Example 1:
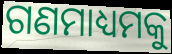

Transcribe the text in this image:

ଗଣମାଧ୍ୟମକୁ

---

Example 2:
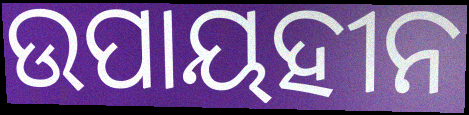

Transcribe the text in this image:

ଉପାୟହୀନ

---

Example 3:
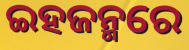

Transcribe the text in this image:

ଇହଜନ୍ମରେ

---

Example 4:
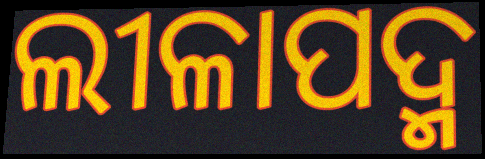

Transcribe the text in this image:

ଲୀଳାପଦ୍ମ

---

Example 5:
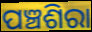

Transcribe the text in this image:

ପଞ୍ଚଶିରା